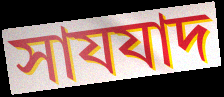
সাযযাদ